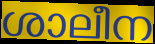
ശാലീന